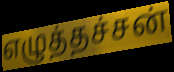
எழுத்தச்சன்